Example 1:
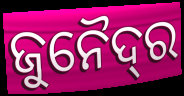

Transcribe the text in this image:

ଜୁନୈଦ୍‌ର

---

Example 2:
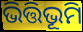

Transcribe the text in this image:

ଭିତ୍ତିଭୂମି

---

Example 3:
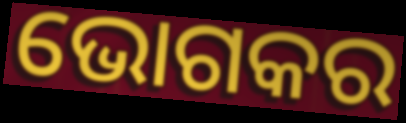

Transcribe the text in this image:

ଭୋଗକର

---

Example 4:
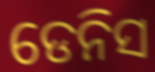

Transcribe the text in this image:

ଡେନିସ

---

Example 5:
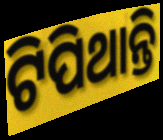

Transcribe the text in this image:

ଟିପିଥାନ୍ତି